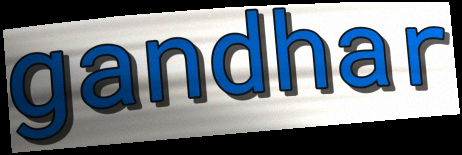
gandhar